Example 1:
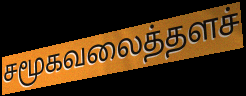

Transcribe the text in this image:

சமூகவலைத்தளச்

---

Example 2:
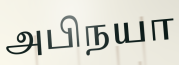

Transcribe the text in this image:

அபிநயா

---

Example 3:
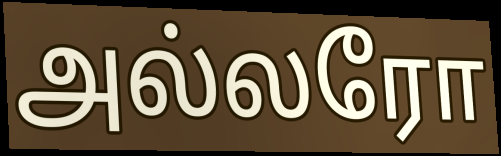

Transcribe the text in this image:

அல்லரோ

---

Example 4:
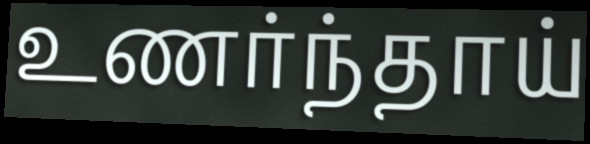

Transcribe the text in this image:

உணர்ந்தாய்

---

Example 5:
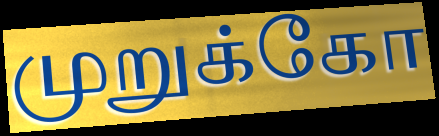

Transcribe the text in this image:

முறுக்கோ